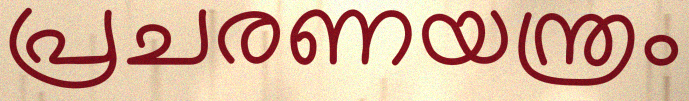
പ്രചരണയന്ത്രം